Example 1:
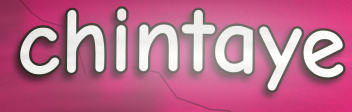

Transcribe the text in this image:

chintaye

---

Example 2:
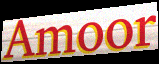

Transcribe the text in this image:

Amoor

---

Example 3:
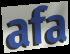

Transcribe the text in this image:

afa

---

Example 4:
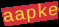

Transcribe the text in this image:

aapke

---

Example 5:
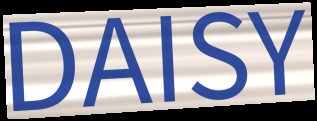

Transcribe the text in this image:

DAISY